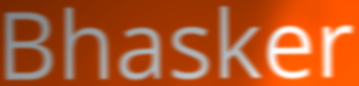
Bhasker